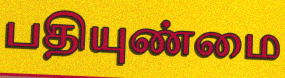
பதியுண்மை